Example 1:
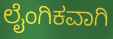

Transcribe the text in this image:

ಲೈಂಗಿಕವಾಗಿ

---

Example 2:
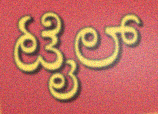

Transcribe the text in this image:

ಟೈಲ್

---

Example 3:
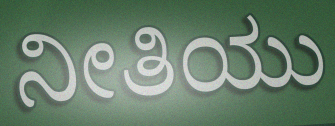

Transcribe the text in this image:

ನೀತಿಯು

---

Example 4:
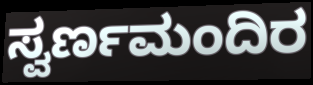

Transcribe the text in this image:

ಸ್ವರ್ಣಮಂದಿರ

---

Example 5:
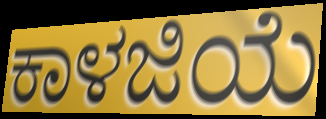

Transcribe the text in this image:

ಕಾಳಜಿಯೆ